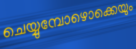
ചെയ്യുമ്പോഴൊക്കെയും